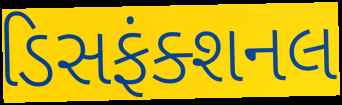
ડિસફંક્શનલ